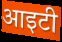
आइटी